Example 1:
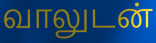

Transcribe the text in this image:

வாலுடன்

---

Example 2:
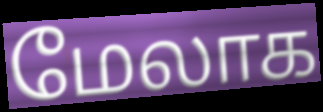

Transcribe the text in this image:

மேலாக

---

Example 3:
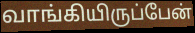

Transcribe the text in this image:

வாங்கியிருப்பேன்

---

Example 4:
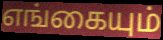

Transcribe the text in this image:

எங்கையும்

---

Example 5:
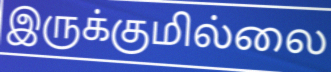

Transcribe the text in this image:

இருக்குமில்லை